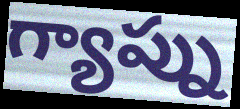
గ్యాప్ను